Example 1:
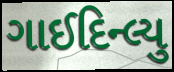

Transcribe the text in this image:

ગાઈદિન્લ્યુ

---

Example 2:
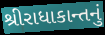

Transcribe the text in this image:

શ્રીરાધાકાન્તનું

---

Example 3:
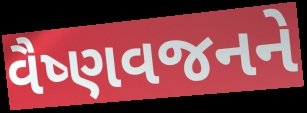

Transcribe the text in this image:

વૈષ્ણવજનને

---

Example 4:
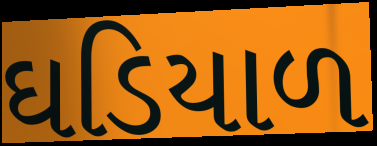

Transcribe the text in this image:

ઘડિયાળ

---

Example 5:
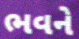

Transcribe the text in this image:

ભવને